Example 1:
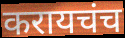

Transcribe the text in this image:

करायचंच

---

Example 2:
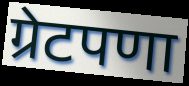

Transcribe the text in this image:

ग्रेटपणा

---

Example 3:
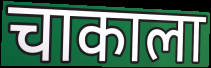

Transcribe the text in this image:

चाकाला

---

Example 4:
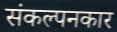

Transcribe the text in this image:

संकल्पनकार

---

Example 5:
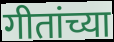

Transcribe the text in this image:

गीतांच्या